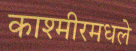
काश्‍मीरमधले